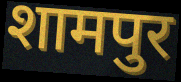
शामपुर